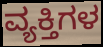
ವ್ಯಕ್ತಿಗಳ